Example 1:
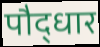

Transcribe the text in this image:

पौद्धार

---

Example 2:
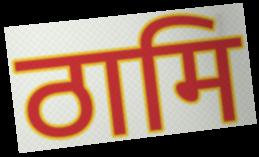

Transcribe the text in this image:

ठामि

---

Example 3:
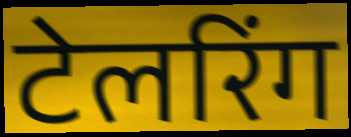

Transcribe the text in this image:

टेलरिंग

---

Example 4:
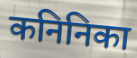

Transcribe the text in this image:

कनिनिका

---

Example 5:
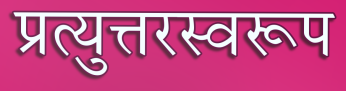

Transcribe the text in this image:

प्रत्युत्तरस्वरूप